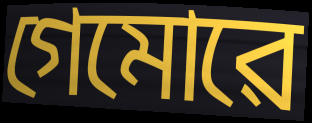
গেমোৱে